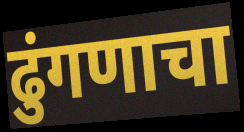
ढुंगणाचा